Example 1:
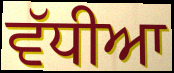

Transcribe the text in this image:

ਵੱਧੀਆ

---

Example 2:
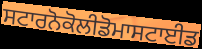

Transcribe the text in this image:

ਸਟਾਰਨੋਕੋਲੀਡੋਮਾਸਟਾਈਡ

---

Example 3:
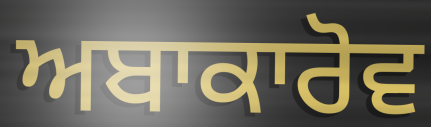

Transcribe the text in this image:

ਅਬਾਕਾਰੋਵ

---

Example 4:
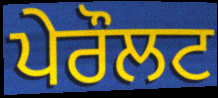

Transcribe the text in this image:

ਪੇਰੌਲਟ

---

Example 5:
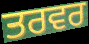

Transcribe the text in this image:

ਤਰਵਰ